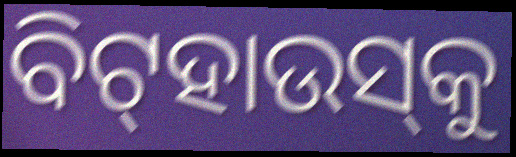
ବିଟ୍‌ହାଉସ୍‌କୁ